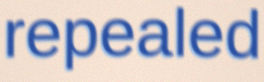
repealed